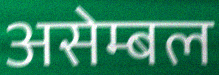
असेम्बल